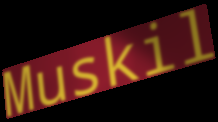
Muskil